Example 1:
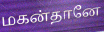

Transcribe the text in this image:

மகன்தானே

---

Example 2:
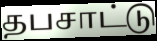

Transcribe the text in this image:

தபசாட்டு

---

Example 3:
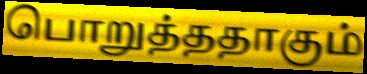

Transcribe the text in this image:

பொறுத்ததாகும்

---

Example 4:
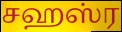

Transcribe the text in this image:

சஹஸ்ர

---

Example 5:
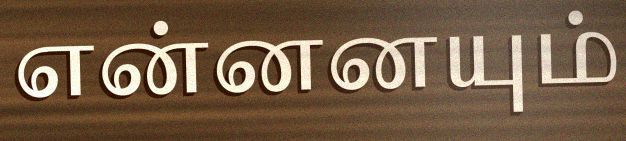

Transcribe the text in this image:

என்னனயும்